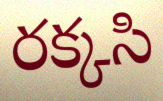
రక్కసి